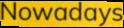
Nowadays